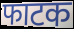
फाटक